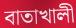
বাতাখালী